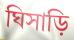
ঘিসাড়ি